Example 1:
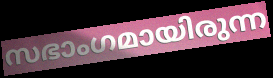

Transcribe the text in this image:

സഭാംഗമായിരുന്ന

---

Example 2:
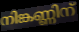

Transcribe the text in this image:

നിങ്കണ്ണിന്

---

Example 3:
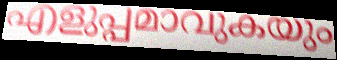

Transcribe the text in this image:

എളുപ്പമാവുകയും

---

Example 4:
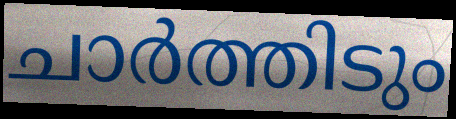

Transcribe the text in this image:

ചാർത്തിടും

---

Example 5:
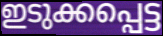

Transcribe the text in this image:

ഇടുക്കപ്പെട്ട